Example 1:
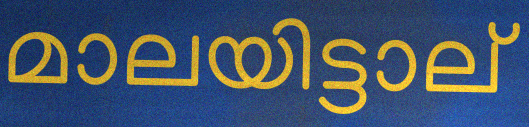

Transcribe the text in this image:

മാലയിട്ടാല്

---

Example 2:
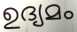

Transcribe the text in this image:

ഉദ്യമം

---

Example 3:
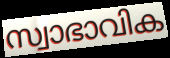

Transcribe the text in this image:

സ്വാഭാവിക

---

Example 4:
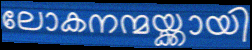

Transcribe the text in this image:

ലോകനന്മയ്ക്കായി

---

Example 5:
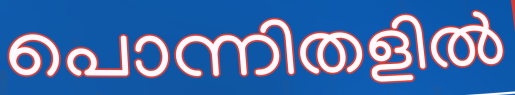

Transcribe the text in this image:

പൊന്നിതളിൽ